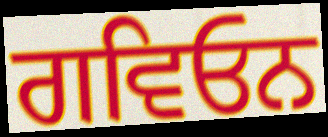
ਗਵਿਓਨ